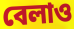
বেলাও